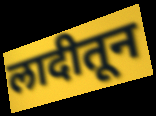
लादीतून